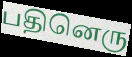
பதினெரு